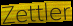
Zettler